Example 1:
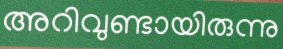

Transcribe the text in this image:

അറിവുണ്ടായിരുന്നു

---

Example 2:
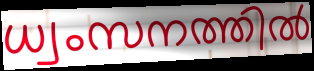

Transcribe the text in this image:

ധ്വംസനത്തിൽ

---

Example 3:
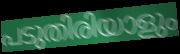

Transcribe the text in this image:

പടുതിരിയാളും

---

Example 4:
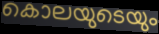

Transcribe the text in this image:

കൊലയുടെയും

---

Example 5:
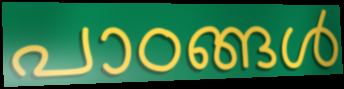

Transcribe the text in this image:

പാഠങ്ങൾ